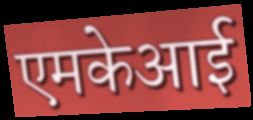
एमकेआई